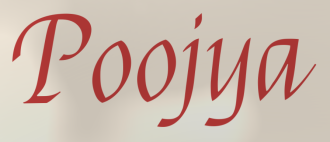
Poojya